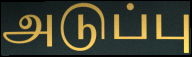
அடுப்பு